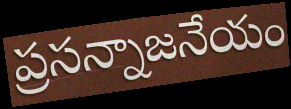
ప్రసన్నాజనేయం